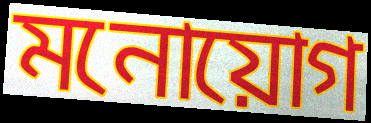
মনোয়োগ